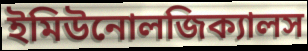
ইমিউনোলজিক্যালস